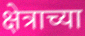
क्षेत्राच्या